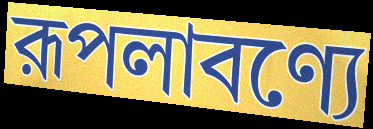
রূপলাবণ্যে